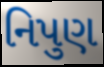
નિપુણ